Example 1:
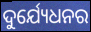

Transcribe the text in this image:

ଦୁର୍ଯ୍ୟେଧନର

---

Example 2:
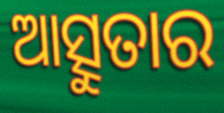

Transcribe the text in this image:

ଆତ୍ସୁତାର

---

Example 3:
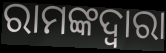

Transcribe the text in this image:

ରାମଙ୍କଦ୍ଵାରା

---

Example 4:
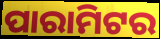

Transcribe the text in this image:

ପାରାମିଟର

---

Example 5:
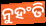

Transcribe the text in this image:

ନୁହଂତି